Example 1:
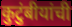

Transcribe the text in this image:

कुटुंबीयांची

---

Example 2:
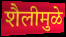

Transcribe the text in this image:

शैलीमुळे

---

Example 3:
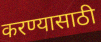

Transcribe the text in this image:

करण्यासाठी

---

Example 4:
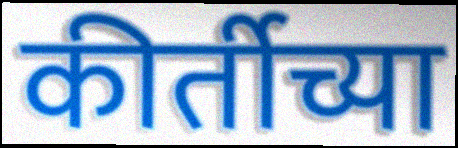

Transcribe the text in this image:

कीर्तीच्या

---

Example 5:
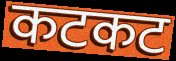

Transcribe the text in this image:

कटकट